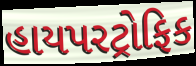
હાયપરટ્રોફિક